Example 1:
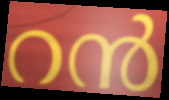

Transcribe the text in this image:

റൻ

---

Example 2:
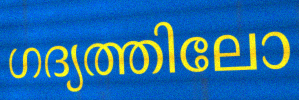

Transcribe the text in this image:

ഗദ്യത്തിലോ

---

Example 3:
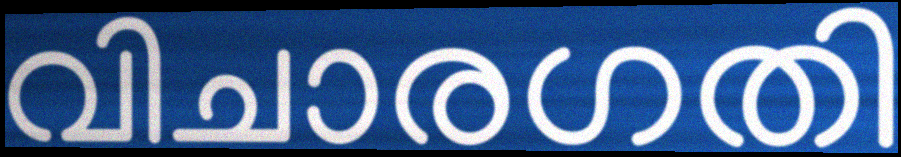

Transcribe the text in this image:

വിചാരഗതി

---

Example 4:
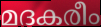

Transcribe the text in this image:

മദകരീം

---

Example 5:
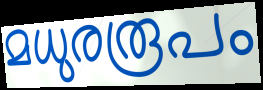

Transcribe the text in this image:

മധുരരൂപം